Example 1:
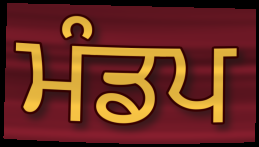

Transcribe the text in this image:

ਮੰਡਪ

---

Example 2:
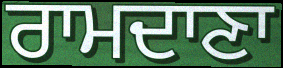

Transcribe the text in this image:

ਰਾਮਦਾਣਾ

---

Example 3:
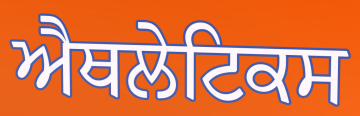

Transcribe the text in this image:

ਐਥਲੇਟਿਕਸ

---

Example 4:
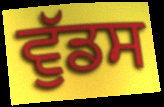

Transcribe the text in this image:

ਵੁੱਡਸ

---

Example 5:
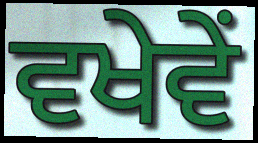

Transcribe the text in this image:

ਵਖੇਵੇਂ